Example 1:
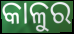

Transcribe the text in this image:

କାଳୁର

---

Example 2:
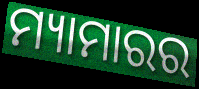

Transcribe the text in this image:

ମ୍ୟାମାରର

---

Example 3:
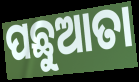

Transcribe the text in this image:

ପଛୁଆତା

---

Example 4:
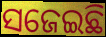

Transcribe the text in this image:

ସଜେଇଛି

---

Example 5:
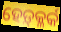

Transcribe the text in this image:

ହେଡ଼୍‍କ୍ଳର୍କ